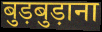
बुड़बुड़ाना